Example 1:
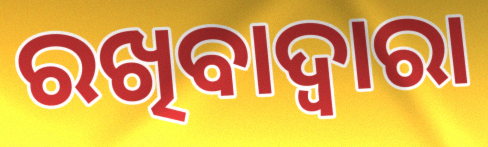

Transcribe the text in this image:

ରଖିବାଦ୍ୱାରା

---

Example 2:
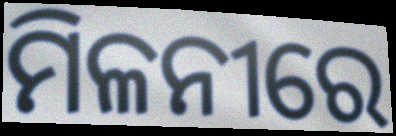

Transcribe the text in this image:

ମିଳନୀରେ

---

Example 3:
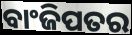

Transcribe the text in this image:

ବାଂଜିପତର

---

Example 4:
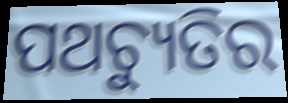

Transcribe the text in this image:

ପଥଚ୍ୟୁତିର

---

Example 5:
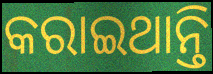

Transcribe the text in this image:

କରାଇଥାନ୍ତି